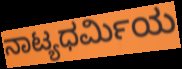
ನಾಟ್ಯಧರ್ಮಿಯ